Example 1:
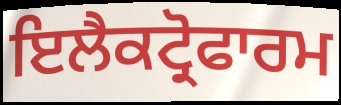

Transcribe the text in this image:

ਇਲੈਕਟ੍ਰੋਫਾਰਮ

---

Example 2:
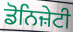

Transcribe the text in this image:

ਡੋਨਿਜ਼ੇਟੀ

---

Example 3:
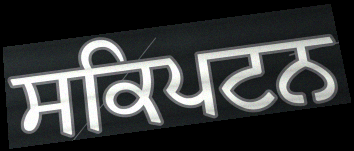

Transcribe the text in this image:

ਸਕਿਪਟਨ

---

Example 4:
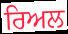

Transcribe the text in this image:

ਰਿਅਲ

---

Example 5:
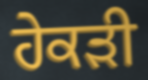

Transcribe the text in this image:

ਹੇਕੜੀ